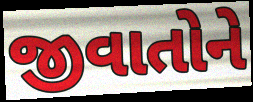
જીવાતોને